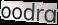
oodra